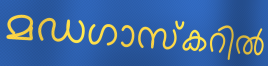
മഡഗാസ്കറിൽ